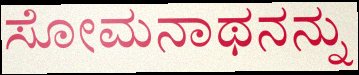
ಸೋಮನಾಥನನ್ನು